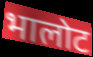
भालोट